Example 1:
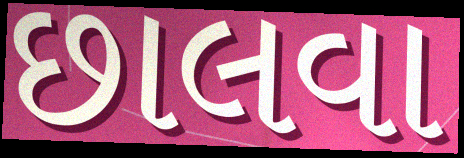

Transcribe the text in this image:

છાલવા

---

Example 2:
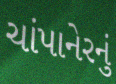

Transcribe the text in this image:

ચાંપાનેરનું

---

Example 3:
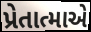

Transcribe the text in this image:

પ્રેતાત્માએ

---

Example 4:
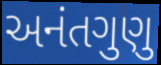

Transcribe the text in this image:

અનંતગુણુ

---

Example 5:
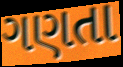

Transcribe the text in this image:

ગણતા